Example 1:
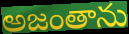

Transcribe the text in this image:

అజంతాను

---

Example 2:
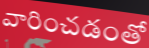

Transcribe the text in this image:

వారించడంతో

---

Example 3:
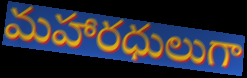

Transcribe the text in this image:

మహారధులుగా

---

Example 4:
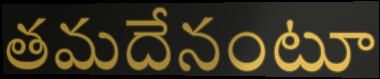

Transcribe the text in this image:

తమదేనంటూ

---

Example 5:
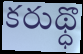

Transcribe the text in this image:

కరుథ్ధొ